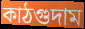
কাঠগুদাম